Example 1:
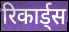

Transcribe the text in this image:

रिकार्ड्स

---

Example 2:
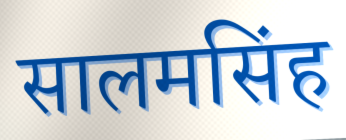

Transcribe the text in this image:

सालमसिंह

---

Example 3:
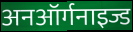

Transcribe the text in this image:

अनऑर्गनाइज्ड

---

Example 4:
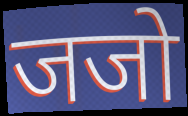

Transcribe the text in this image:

जजो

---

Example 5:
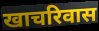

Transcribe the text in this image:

खाचरिवास